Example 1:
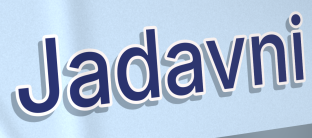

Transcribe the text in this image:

Jadavni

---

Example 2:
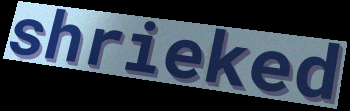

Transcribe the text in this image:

shrieked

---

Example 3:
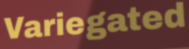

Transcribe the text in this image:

Variegated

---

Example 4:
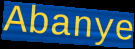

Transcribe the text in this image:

Abanye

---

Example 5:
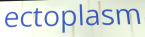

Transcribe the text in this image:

ectoplasm